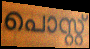
പൊസ്റ്റ്